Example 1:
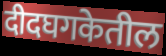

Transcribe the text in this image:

दीदघगकेतील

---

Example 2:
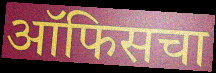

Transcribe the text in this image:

ऑफिसचा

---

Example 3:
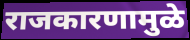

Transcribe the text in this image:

राजकारणामुळे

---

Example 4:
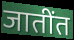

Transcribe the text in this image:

जातींत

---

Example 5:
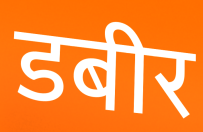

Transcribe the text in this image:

डबीर